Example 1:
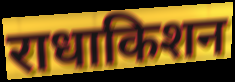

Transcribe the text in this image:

राधाकिशन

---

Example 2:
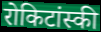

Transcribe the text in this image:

रोकिटांस्की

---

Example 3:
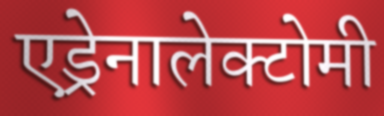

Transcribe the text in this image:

एड्रेनालेक्टोमी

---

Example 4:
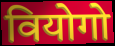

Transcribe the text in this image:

वियोगो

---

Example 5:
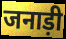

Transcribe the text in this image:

जनाड़ी